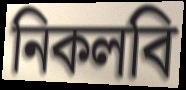
নিকলবি